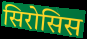
सिरोसिस